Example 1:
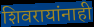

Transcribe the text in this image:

शिवरायांनाही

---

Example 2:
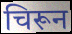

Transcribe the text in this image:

चिरून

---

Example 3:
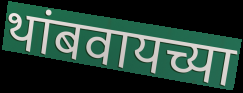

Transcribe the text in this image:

थांबवायच्या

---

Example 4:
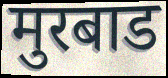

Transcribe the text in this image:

मुरबाड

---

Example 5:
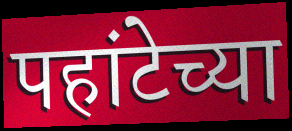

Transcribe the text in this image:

पहांटेच्या